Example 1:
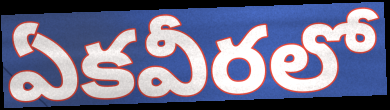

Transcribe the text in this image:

ఏకవీరలో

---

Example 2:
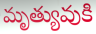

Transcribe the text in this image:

మృత్యువుకి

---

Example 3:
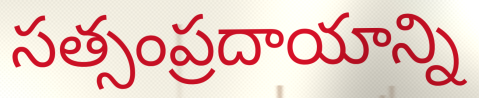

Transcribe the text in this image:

సత్సంప్రదాయాన్ని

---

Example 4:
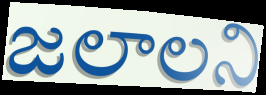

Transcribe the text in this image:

జలాలని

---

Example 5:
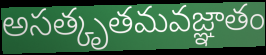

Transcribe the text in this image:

అసత్కృతమవజ్ఞాతం